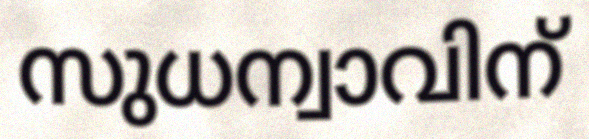
സുധന്വാവിന്